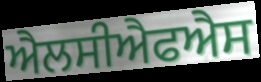
ਐਲਸੀਐਫਐਸ